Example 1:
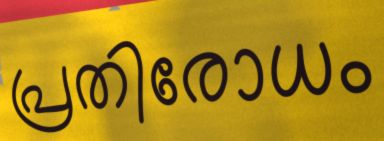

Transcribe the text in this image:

പ്രതിരോധം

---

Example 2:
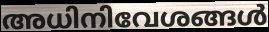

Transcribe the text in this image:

അധിനിവേശങ്ങൾ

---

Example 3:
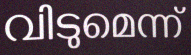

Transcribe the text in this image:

വിടുമെന്ന്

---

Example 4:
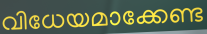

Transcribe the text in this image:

വിധേയമാക്കേണ്ട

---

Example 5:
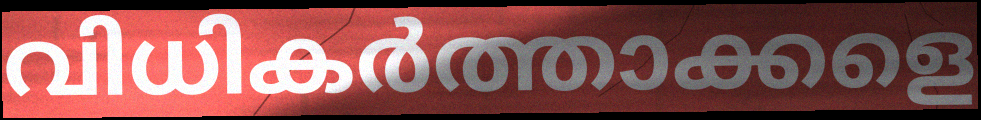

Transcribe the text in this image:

വിധികർത്താക്കളെ